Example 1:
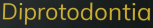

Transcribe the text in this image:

Diprotodontia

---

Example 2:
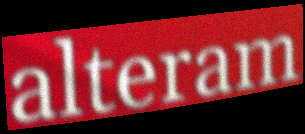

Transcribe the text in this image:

alteram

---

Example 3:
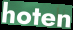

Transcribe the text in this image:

hoten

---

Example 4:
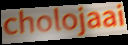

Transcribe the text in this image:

cholojaai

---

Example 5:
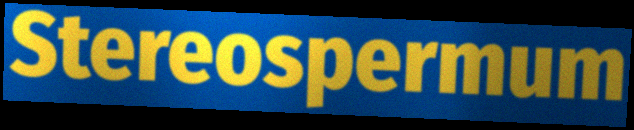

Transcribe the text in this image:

Stereospermum